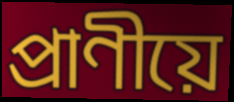
প্ৰাণীয়ে